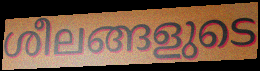
ശീലങ്ങളുടെ